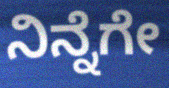
ನಿನ್ನೆಗೇ